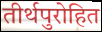
तीर्थपुरोहित